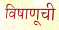
विषाणूची